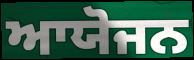
ਆਯੋਜਨ